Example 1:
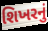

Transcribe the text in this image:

શિખરનું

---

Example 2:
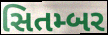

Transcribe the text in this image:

સિતમ્બર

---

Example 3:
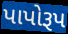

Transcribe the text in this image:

પાપોરૂપ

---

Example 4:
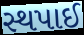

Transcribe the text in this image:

સ્થપાઈ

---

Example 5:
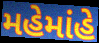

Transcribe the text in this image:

મહેમાંહે